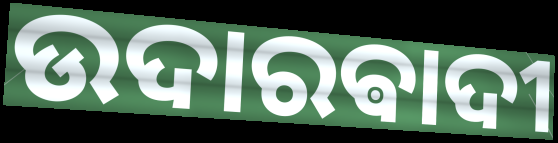
ଉଦାରଵାଦୀ